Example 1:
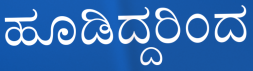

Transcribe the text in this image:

ಹೂಡಿದ್ದರಿಂದ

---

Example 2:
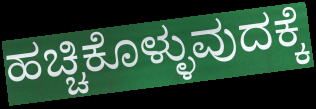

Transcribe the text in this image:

ಹಚ್ಚಿಕೊಳ್ಳುವುದಕ್ಕೆ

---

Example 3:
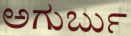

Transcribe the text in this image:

ಅಗುರ್ಬು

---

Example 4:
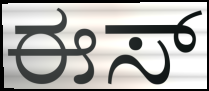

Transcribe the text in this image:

ಈಸ್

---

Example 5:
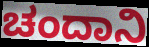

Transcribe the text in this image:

ಚಂದಾನಿ